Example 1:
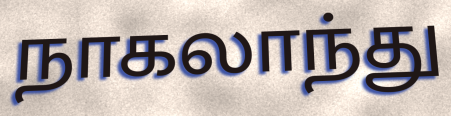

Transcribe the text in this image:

நாகலாந்து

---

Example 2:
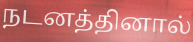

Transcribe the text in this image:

நடனத்தினால்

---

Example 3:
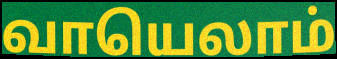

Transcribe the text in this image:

வாயெலாம்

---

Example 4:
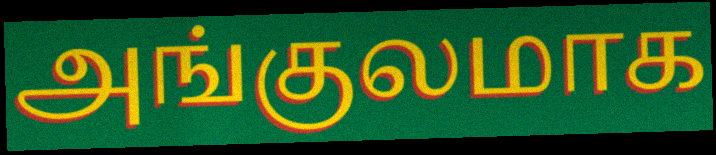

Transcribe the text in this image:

அங்குலமாக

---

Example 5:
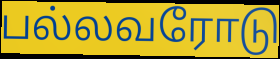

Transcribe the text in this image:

பல்லவரோடு